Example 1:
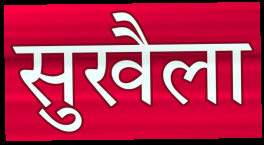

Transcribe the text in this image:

सुखैला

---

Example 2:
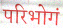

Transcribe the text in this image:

परिभोगं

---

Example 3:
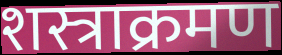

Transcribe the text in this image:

शस्त्राक्रमण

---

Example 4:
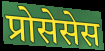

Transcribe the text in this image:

प्रोसेसेस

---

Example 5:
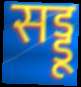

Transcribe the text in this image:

सड्डू